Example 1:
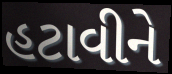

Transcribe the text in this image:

હટાવીને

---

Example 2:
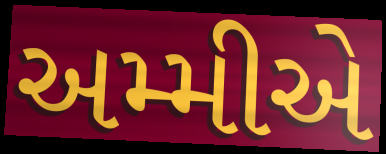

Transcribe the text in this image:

અમ્મીએ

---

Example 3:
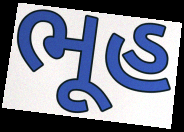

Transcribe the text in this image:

ભૂહ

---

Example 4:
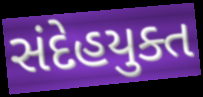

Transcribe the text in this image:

સંદેહયુક્ત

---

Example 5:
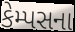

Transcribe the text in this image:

કેમ્પસના